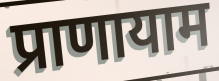
प्राणायाम